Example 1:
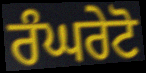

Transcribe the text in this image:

ਰੰਘਰੇਟੋ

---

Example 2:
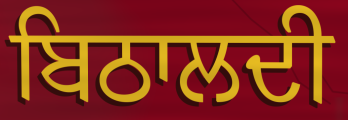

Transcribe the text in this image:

ਬਿਠਾਲਦੀ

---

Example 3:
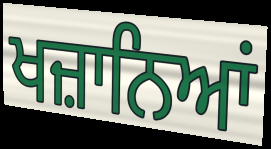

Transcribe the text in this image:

ਖਜ਼ਾਨਿਆਂ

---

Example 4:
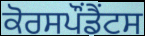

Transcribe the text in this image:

ਕੋਰਸਪੌਂਡੈਂਟਸ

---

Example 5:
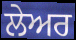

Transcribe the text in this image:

ਲੇਅਰ